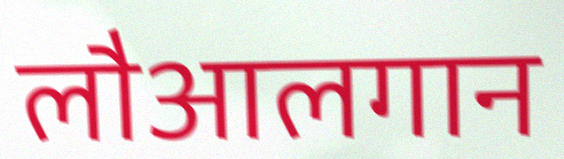
लौआलगान